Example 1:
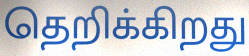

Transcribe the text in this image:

தெறிக்கிறது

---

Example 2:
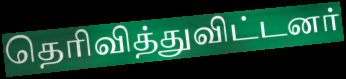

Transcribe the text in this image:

தெரிவித்துவிட்டனர்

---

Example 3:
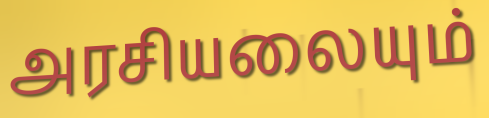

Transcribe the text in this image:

அரசியலையும்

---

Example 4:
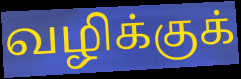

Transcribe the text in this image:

வழிக்குக்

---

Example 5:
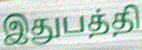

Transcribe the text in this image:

இதுபத்தி